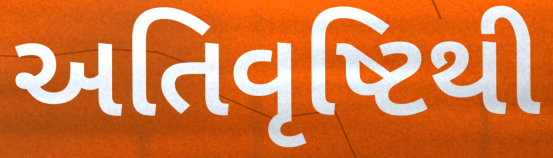
અતિવૃષ્ટિથી